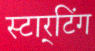
स्टार्टिंग